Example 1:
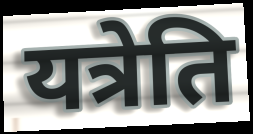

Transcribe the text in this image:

यत्रेति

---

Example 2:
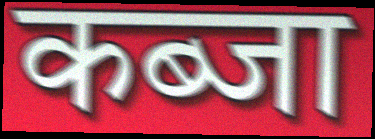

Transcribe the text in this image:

कब्जा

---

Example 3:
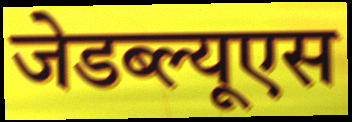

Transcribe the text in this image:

जेडब्ल्यूएस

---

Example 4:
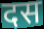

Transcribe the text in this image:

दस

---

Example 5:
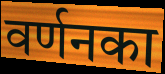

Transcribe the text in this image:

वर्णनका